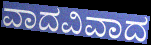
ವಾದವಿವಾದ